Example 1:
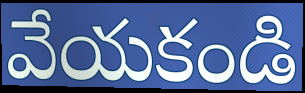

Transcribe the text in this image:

వేయకండి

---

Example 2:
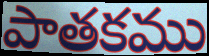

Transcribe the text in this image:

పాతకము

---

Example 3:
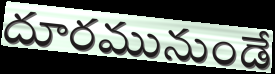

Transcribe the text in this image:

దూరమునుండే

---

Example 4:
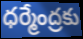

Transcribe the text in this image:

ధర్మేంద్రకు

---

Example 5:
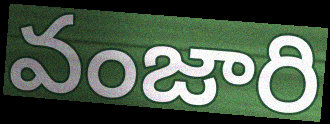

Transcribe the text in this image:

వంజారి